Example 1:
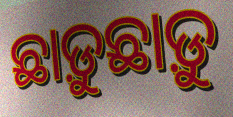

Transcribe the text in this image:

ଛାଡ଼ୁଛାଡ଼ୁ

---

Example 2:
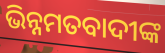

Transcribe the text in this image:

ଭିନ୍ନମତବାଦୀଙ୍କ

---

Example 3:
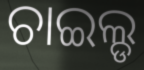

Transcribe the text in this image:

ଚାଇଲ୍ଡ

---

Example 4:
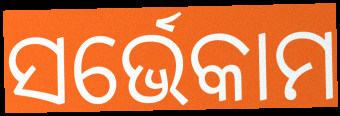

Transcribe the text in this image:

ସର୍ଭେକାମ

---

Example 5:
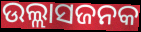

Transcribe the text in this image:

ଉଲ୍ଲାସଜନକ